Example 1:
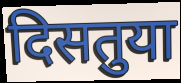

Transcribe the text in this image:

दिसतुया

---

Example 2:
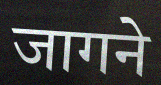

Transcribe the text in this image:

जागने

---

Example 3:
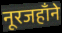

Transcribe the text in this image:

नूरजहाँने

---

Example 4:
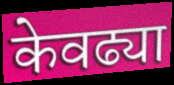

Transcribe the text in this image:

केवढ्या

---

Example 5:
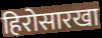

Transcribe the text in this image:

हिरोसारखा